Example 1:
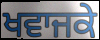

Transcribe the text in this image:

ਖਵਾਜਕੇ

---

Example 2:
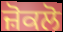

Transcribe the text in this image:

ਜ਼ੋਕਲੋ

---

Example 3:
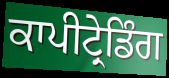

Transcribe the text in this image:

ਕਾਪੀਟ੍ਰੇਡਿੰਗ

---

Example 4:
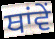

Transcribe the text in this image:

ਥਾਂਵੇਂ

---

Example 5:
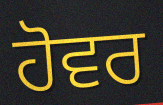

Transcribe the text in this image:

ਹੋਵਰ